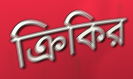
ক্রিকির